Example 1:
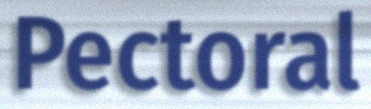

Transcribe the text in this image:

Pectoral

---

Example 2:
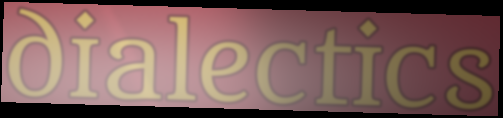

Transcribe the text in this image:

dialectics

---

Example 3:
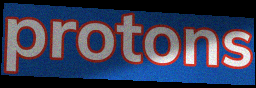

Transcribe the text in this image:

protons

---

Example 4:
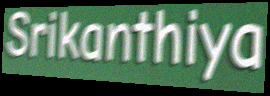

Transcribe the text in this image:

Srikanthiya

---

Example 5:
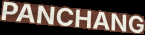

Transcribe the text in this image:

PANCHANG